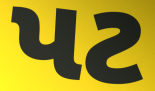
પટ